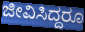
ಜೀವಿಸಿದ್ದರೂ